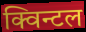
क्विन्टल